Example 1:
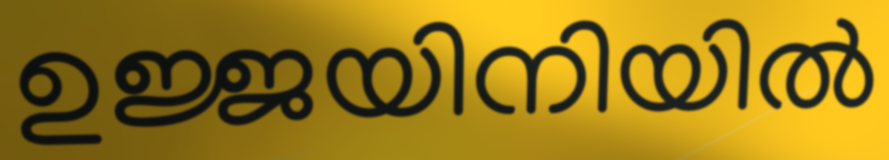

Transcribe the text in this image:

ഉജ്ജയിനിയിൽ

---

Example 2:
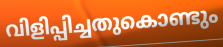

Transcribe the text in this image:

വിളിപ്പിച്ചതുകൊണ്ടും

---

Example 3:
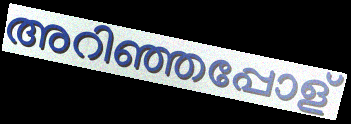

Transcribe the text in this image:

അറിഞ്ഞപ്പോള്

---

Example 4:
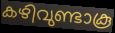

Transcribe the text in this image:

കഴിവുണ്ടാകൂ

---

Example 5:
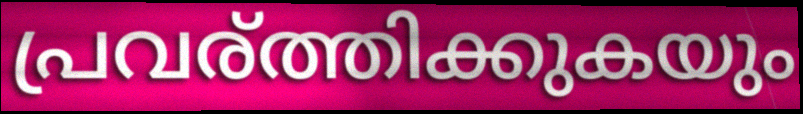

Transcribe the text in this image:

പ്രവര്ത്തിക്കുകയും